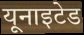
यूनाइटेड